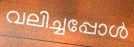
വലിച്ചപ്പോൾ